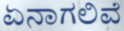
ಏನಾಗಲಿವೆ